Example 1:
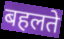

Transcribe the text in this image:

बहलते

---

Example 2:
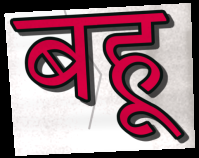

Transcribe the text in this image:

बहू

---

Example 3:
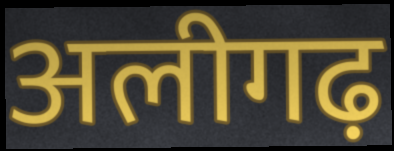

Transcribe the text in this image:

अलीगढ़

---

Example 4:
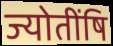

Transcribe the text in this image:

ज्योतींषि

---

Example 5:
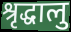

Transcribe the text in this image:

श्रृद्धालु